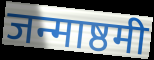
जन्माष्ठमी